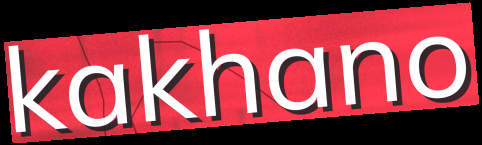
kakhano